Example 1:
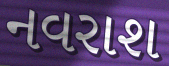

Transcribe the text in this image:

નવરાશ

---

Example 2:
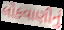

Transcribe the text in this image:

લોકવાણીનું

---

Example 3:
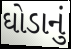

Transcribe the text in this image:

ઘોડાનું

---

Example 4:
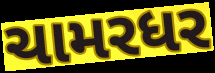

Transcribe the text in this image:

ચામરધર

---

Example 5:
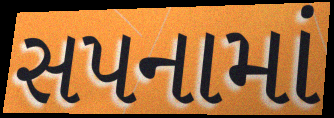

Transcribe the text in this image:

સપનામાં